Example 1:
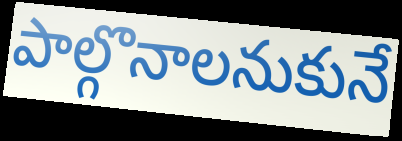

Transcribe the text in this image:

పాల్గొనాలనుకునే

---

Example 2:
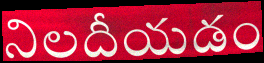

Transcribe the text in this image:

నిలదీయడం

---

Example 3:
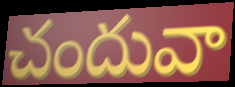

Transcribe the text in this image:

చందువా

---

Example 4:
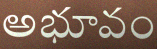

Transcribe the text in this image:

అభూవం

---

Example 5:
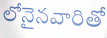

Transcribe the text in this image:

లోనైనవారితో